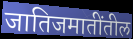
जातिजमातींतील